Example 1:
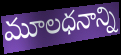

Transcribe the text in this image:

మూలధనాన్ని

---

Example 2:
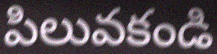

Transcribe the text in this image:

పిలువకండి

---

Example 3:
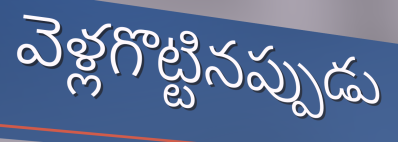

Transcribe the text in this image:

వెళ్లగొట్టినప్పుడు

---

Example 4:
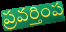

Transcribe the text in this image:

ప్రవర్తింప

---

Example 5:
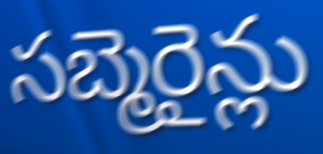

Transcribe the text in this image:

సబ్మెరైన్లు